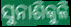
ସୁନାଶିକୁଳି